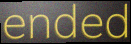
ended